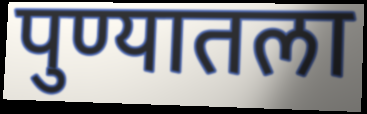
पुण्यातला